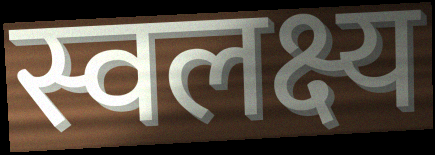
स्वलक्ष्य